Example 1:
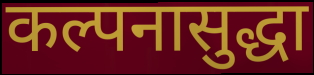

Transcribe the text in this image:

कल्पनासुद्धा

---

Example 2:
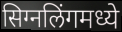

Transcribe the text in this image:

सिग्नलिंगमध्ये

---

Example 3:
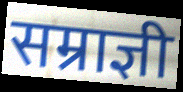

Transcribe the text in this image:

सम्राज्ञी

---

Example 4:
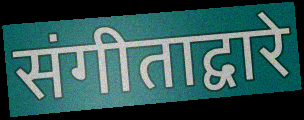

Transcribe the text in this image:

संगीताद्वारे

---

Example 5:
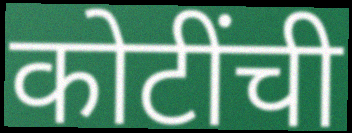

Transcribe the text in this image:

कोटींची